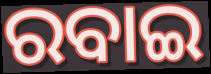
ରବାଇ